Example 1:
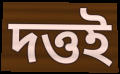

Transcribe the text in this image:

দত্তই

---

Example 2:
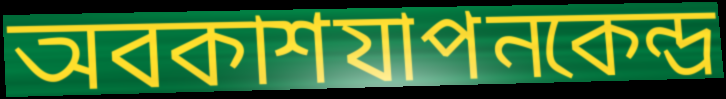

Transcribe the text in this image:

অবকাশযাপনকেন্দ্র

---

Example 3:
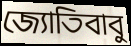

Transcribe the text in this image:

জ্যোতিবাবু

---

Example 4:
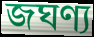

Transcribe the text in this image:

জঘণ্য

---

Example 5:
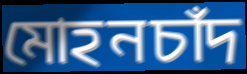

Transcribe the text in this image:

মোহনচাঁদ